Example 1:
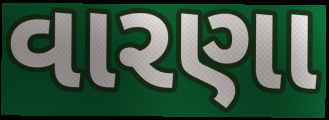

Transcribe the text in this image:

વારણા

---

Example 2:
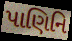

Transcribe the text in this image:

પાણિનિ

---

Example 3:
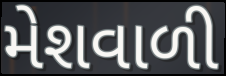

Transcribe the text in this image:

મેશવાળી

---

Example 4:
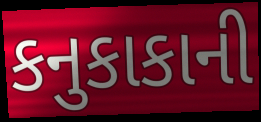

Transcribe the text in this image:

કનુકાકાની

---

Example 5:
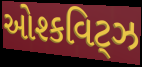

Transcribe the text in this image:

ઓશ્કવિટ્ઝ